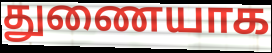
துணையாக